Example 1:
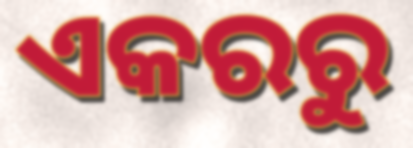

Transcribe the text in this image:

ଏକରରୁ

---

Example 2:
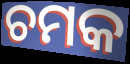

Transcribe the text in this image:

ଚମକ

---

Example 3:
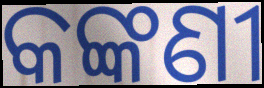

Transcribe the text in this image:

କଙ୍କଣୀ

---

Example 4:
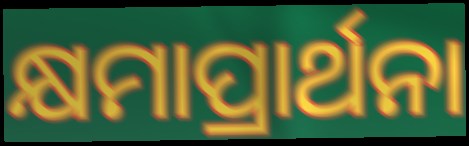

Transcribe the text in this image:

କ୍ଷମାପ୍ରାର୍ଥନା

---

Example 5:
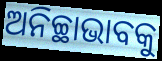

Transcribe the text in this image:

ଅନିଚ୍ଛାଭାବକୁ